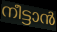
നീട്ടാൻ